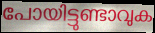
പോയിട്ടുണ്ടാവുക